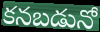
కనబడునో